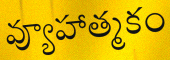
వ్యూహాత్మకం